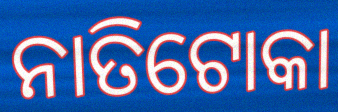
ନାତିଟୋକା